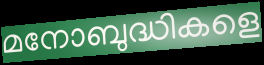
മനോബുദ്ധികളെ